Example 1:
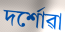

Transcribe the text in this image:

দৰ্শোৱা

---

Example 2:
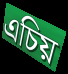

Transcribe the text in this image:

এচিয়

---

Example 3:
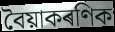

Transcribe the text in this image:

বৈয়াকৰণিক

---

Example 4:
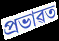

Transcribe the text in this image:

প্ৰভাৱত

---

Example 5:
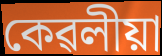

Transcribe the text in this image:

কেৱলীয়া